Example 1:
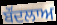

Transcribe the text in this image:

ਬੌਂਦਲਾਅ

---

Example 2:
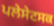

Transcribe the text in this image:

ਪਲੇਸੇਟਸਕ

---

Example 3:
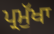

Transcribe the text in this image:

ਪ੍ਰਮੁੱਖਾ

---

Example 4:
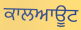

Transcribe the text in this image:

ਕਾਲਆਊਟ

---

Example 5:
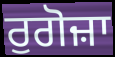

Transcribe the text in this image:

ਰੁਗੋਜ਼ਾ